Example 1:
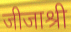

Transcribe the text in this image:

जीजाश्री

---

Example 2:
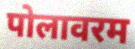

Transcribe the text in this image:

पोलावरम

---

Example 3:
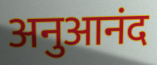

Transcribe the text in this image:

अनुआनंद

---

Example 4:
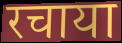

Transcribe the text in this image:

रचाया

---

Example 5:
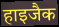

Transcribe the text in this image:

हाइजैक